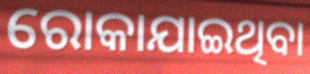
ରୋକାଯାଇଥିବା